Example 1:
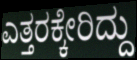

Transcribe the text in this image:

ಎತ್ತರಕ್ಕೇರಿದ್ದು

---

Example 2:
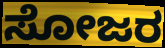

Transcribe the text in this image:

ಸೋಜರ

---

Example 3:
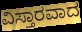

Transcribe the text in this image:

ವಿಸ್ತಾರವಾದ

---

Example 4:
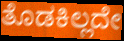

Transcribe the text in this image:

ತೊಡಕಿಲ್ಲದೇ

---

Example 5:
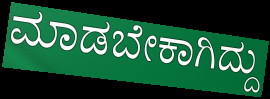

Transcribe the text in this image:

ಮಾಡಬೇಕಾಗಿದ್ದು